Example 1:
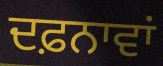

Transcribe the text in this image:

ਦਫ਼ਨਾਵਾਂ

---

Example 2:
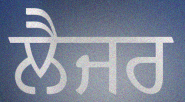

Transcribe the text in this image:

ਲੈਜਰ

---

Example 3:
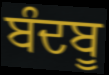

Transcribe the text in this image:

ਬੰਦਬੂ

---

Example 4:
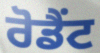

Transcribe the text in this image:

ਰੋਡੈਂਟ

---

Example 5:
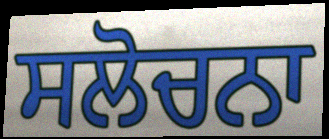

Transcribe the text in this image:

ਸਲੋਚਨਾ